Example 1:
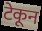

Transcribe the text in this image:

टेकून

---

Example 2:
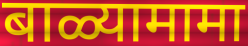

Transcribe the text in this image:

बाळ्यामामा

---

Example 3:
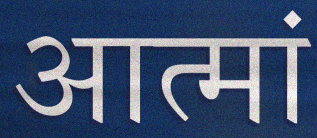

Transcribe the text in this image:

आत्मां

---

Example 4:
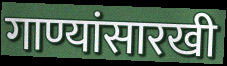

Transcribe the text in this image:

गाण्यांसारखी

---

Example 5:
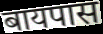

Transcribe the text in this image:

बायपास